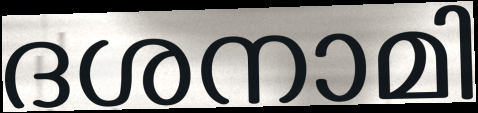
ദശനാമി